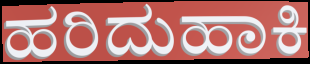
ಹರಿದುಹಾಕಿ